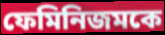
ফেমিনিজমকে